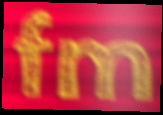
fm